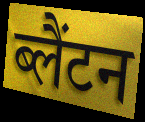
ब्लैंटन